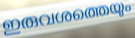
ഇരുവശത്തെയും